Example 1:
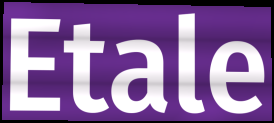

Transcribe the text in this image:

Etale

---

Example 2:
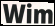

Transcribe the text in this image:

Wim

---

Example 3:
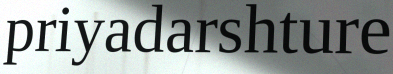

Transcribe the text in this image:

priyadarshture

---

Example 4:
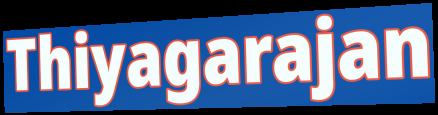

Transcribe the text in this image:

Thiyagarajan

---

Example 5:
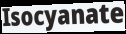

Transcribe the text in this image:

Isocyanate